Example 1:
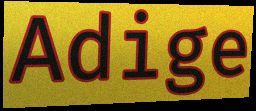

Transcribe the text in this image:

Adige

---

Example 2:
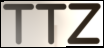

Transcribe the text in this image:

TTZ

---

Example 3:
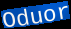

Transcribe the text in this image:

Oduor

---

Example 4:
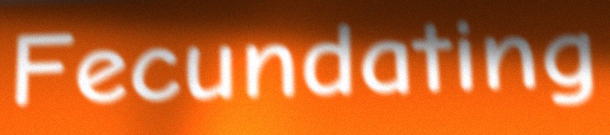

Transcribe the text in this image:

Fecundating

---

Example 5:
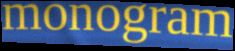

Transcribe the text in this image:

monogram